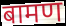
बामण